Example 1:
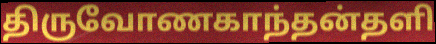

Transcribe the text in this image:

திருவோணகாந்தன்தளி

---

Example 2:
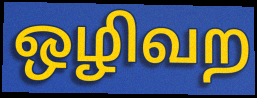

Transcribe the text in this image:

ஒழிவற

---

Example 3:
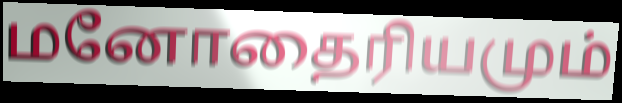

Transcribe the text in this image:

மனோதைரியமும்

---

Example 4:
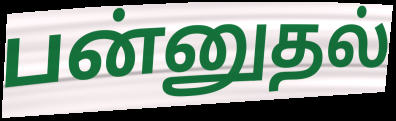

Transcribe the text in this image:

பன்னுதல்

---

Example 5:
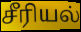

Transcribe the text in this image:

சீரியல்